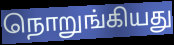
நொறுங்கியது